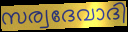
സര്വദേവാദി